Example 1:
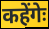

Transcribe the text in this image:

कहेंगेः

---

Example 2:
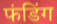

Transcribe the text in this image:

फंडिंग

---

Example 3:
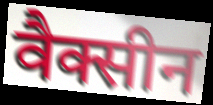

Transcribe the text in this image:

वैक्सीन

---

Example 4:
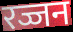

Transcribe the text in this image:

रज्जन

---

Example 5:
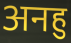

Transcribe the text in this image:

अनहु